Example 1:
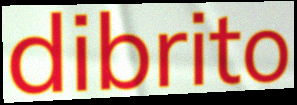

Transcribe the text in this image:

dibrito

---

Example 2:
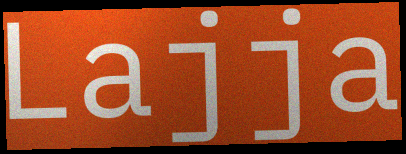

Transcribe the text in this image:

Lajja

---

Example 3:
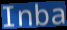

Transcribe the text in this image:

Inba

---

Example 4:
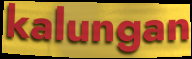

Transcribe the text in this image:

kalungan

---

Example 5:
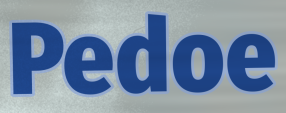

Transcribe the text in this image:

Pedoe